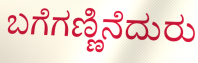
ಬಗೆಗಣ್ಣಿನೆದುರು